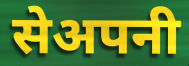
सेअपनी